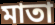
মাতা